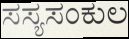
ಸಸ್ಯಸಂಕುಲ